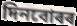
দিনবোৰৰ